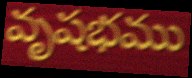
వృషభము